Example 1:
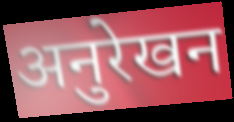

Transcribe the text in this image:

अनुरेखन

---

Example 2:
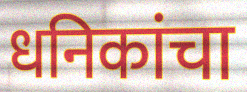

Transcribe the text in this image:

धनिकांचा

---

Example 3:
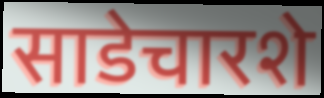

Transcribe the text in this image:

साडेचारशे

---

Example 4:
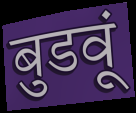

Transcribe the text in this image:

बुडवूं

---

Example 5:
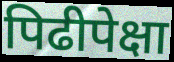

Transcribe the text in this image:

पिढीपेक्षा